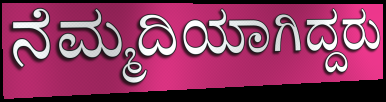
ನೆಮ್ಮದಿಯಾಗಿದ್ದರು